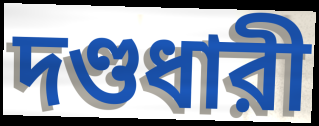
দণ্ডধারী